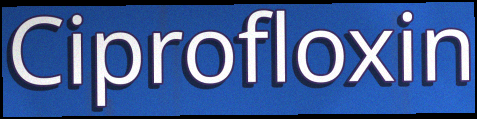
Ciprofloxin